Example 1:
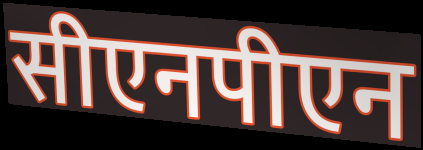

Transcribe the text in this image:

सीएनपीएन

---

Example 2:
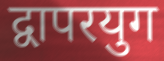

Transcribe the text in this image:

द्वापरयुग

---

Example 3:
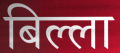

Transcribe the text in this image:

बिल्ला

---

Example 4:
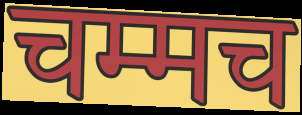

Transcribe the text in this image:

चम्मच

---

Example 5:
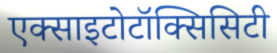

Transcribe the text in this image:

एक्साइटोटॉक्सिसिटी